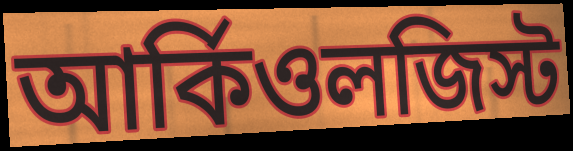
আর্কিওলজিস্ট